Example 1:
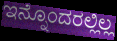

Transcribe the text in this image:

ಇನ್ನೊಂದರಲ್ಲಿಲ್ಲ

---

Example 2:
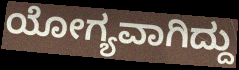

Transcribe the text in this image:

ಯೋಗ್ಯವಾಗಿದ್ದು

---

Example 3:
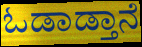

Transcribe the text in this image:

ಓಡಾಡ್ತಾನೆ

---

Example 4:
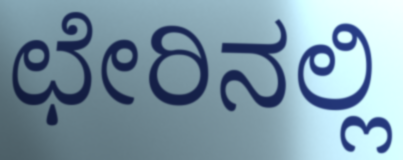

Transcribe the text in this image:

ಛೇರಿನಲ್ಲಿ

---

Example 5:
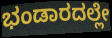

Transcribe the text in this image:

ಭಂಡಾರದಲ್ಲೇ